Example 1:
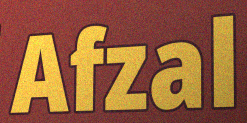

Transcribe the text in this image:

Afzal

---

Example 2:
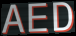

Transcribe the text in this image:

AED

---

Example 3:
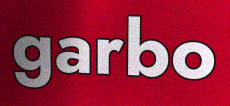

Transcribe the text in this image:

garbo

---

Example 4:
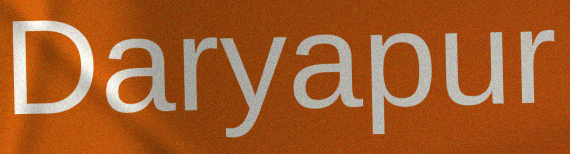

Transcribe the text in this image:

Daryapur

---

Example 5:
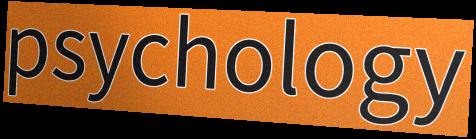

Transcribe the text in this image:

psychology